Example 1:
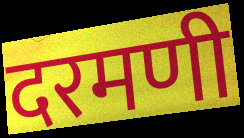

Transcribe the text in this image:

दरमणी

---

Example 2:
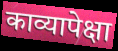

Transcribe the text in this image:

काव्यापेक्षा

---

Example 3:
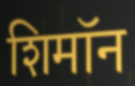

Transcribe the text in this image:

शिमॉन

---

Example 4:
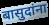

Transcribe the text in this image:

बासुदांना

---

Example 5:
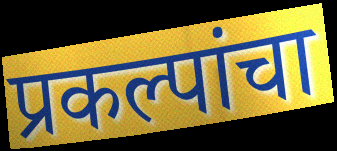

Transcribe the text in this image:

प्रकल्पांचा